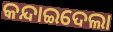
କନ୍ଦାଇଦେଲା